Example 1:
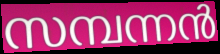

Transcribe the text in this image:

സമ്പന്നൻ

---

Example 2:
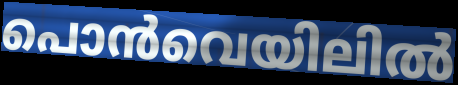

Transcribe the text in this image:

പൊൻവെയിലിൽ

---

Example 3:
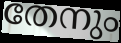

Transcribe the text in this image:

തേനും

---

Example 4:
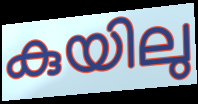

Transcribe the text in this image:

കുയിലു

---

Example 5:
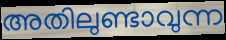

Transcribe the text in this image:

അതിലുണ്ടാവുന്ന